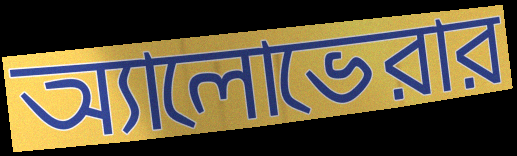
অ্যালোভেরার